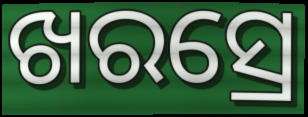
ଖରସ୍ରେ